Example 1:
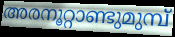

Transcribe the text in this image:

അരനൂറ്റാണ്ടുമുമ്പ്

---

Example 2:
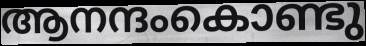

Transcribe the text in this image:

ആനന്ദംകൊണ്ടു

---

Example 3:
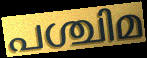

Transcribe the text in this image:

പശ്ചിമ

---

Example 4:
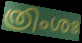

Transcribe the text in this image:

ത്രിംശഃ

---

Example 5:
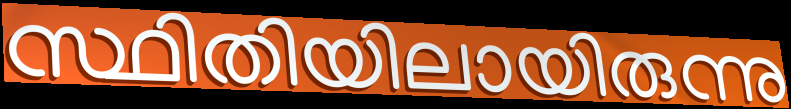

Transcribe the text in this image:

സ്ഥിതിയിലായിരുന്നു